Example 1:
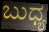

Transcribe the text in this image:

ಬುಧ್ಯ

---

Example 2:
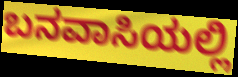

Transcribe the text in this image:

ಬನವಾಸಿಯಲ್ಲಿ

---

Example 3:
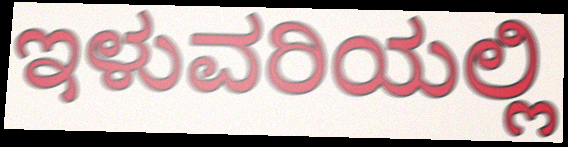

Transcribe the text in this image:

ಇಳುವರಿಯಲ್ಲಿ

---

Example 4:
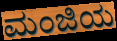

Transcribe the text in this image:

ಮಂಜಿಯ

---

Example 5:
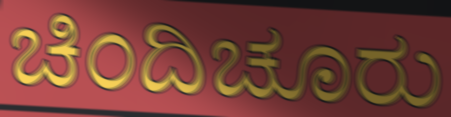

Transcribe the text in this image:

ಚಿಂದಿಚೂರು